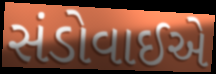
સંડોવાઈએ